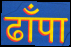
ढाँपा